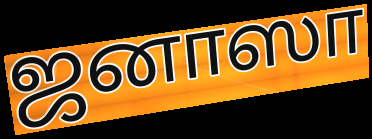
ஜனாஸா